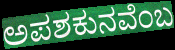
ಅಪಶಕುನವೆಂಬ